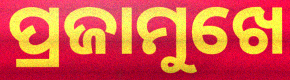
ପ୍ରଜାମୁଖେ